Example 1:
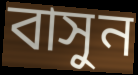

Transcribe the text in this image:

বাসুন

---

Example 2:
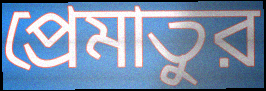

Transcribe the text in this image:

প্রেমাতুর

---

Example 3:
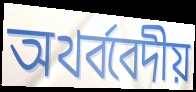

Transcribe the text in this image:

অথর্ববেদীয়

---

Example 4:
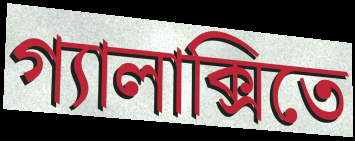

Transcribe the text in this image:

গ্যালাক্সিতে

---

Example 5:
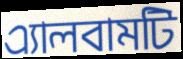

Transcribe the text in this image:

এ্যালবামটি